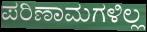
ಪರಿಣಾಮಗಳಿಲ್ಲ